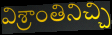
విశ్రాంతినిచ్చి